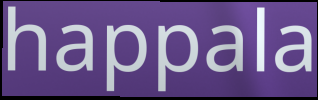
happala